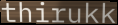
thirukk